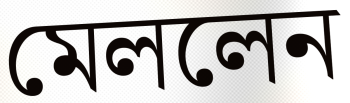
মেললেন